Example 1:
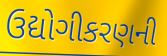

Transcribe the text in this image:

ઉદ્યોગીકરણની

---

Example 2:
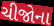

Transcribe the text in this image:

ચીજોના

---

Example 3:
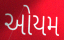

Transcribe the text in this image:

ઓયમ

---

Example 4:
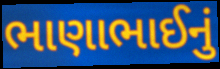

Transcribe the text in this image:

ભાણાભાઈનું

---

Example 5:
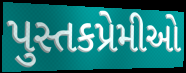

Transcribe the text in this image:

પુસ્તકપ્રેમીઓ